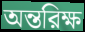
অন্তরিক্ষ